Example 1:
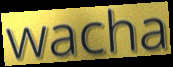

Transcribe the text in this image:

wacha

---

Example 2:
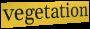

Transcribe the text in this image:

vegetation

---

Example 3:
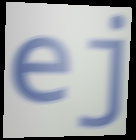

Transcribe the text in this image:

ej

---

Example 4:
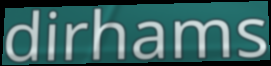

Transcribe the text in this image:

dirhams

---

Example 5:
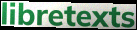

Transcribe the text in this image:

libretexts